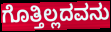
ಗೊತ್ತಿಲ್ಲದವನು